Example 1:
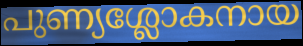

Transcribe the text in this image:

പുണ്യശ്ലോകനായ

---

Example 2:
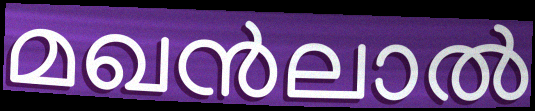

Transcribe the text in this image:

മഖൻലാൽ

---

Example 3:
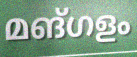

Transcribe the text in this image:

മങ്ഗളം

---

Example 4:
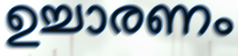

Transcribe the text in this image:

ഉച്ചാരണം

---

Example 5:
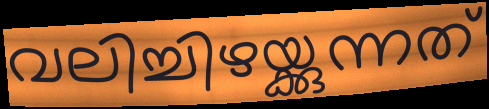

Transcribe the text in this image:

വലിച്ചിഴയ്ക്കുന്നത്